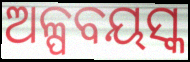
ଅଳ୍ପବୟସ୍କ